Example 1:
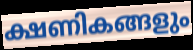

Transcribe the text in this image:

ക്ഷണികങ്ങളും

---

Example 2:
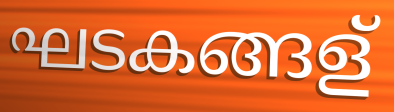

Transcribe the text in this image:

ഘടകങ്ങള്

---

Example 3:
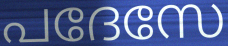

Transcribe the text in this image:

പദേസേ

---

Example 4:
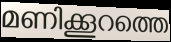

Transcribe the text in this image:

മണിക്കൂറത്തെ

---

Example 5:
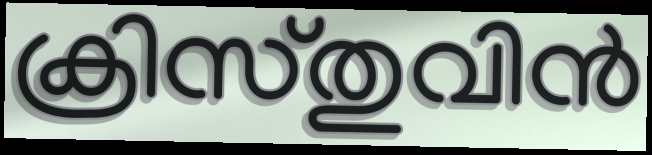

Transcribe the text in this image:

ക്രിസ്തുവിൻ